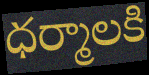
ధర్మాలకి